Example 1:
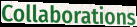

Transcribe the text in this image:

Collaborations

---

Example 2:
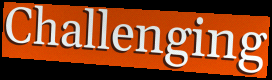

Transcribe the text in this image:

Challenging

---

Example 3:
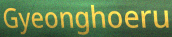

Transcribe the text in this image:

Gyeonghoeru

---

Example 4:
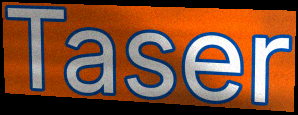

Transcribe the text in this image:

Taser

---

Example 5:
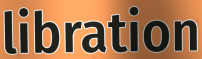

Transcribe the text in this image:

libration